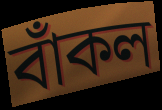
বাঁকল